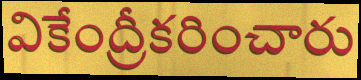
వికేంద్రీకరించారు